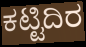
ಕಟ್ಟಿದಿರ